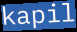
kapil